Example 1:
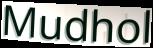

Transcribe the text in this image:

Mudhol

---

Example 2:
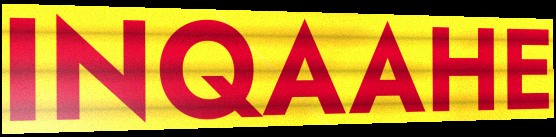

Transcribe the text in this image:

INQAAHE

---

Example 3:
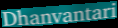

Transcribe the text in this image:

Dhanvantari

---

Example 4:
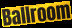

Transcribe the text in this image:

Ballroom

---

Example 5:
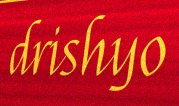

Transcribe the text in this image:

drishyo